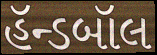
હૅન્ડબૉલ